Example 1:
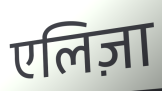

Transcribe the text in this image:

एलिज़ा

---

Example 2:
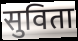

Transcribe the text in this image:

सुविता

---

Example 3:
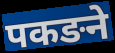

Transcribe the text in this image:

पकङने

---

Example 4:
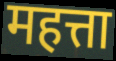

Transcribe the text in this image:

महत्ता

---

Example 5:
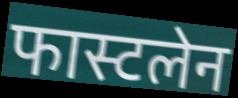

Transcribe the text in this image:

फास्टलेन